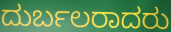
ದುರ್ಬಲರಾದರು